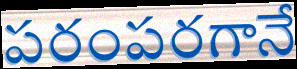
పరంపరగానే